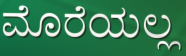
ಮೊರೆಯಲ್ಲ